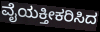
ವೈಯಕ್ತೀಕರಿಸಿದ